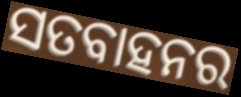
ସତବାହନର